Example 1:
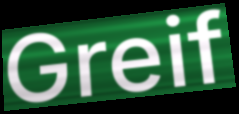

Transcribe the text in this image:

Greif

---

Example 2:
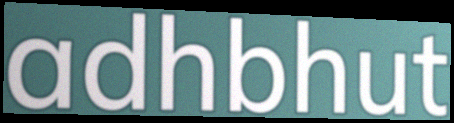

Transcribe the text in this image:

adhbhut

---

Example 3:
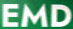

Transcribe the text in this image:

EMD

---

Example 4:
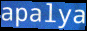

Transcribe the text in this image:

apalya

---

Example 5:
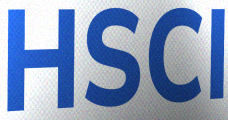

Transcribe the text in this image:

HSCI